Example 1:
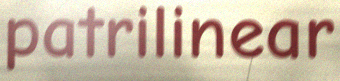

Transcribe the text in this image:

patrilinear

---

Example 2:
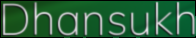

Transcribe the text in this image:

Dhansukh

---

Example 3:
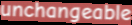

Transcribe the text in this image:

unchangeable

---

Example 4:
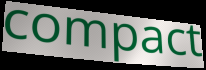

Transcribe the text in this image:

compact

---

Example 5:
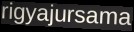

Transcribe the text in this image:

rigyajursama